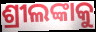
ଶ୍ରୀଲଙ୍କାକୁ